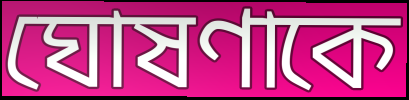
ঘোষণাকে